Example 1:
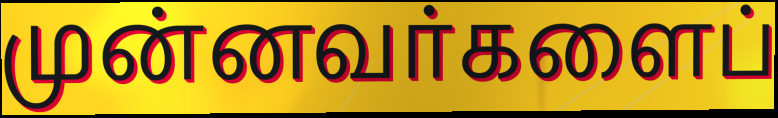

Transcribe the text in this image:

முன்னவர்களைப்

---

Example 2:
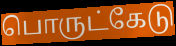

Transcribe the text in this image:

பொருட்கேடு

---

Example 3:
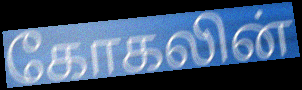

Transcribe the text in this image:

கோகலின்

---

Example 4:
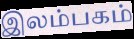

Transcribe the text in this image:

இலம்பகம்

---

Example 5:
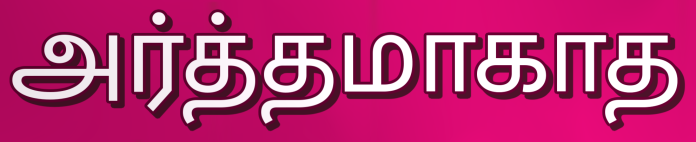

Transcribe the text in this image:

அர்த்தமாகாத